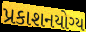
પ્રકાશનયોગ્ય